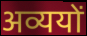
अव्ययों